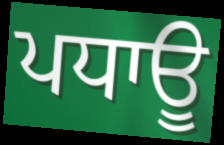
ਪਧਾਊ